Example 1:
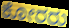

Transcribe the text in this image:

ಕೋರರು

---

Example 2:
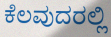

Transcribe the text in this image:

ಕೆಲವುದರಲ್ಲಿ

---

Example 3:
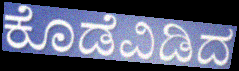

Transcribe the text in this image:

ಕೊಡೆವಿಡಿದ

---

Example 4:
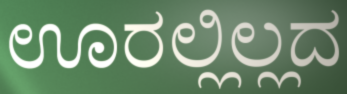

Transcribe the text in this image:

ಊರಲ್ಲಿಲ್ಲದ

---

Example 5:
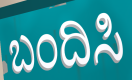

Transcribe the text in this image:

ಬಂದಿಸಿ